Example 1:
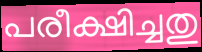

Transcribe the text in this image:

പരീക്ഷിച്ചതു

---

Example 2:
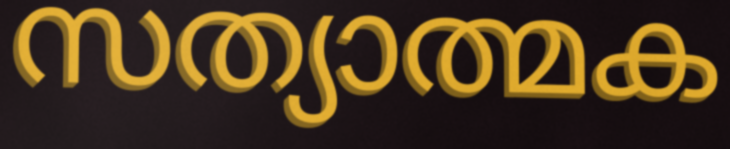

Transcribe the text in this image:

സത്യാത്മക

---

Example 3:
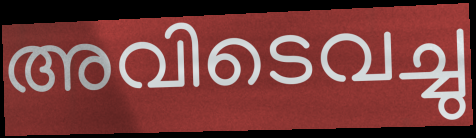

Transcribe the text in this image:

അവിടെവച്ചു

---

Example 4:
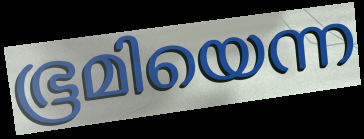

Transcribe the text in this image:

ഭൂമിയെന്ന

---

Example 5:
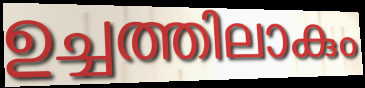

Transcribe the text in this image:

ഉച്ചത്തിലാകും